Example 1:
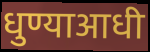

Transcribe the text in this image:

धुण्याआधी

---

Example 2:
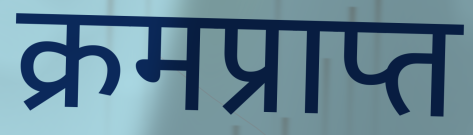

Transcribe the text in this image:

क्रमप्राप्त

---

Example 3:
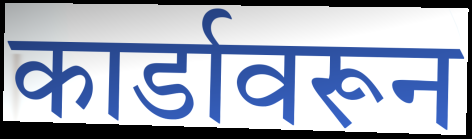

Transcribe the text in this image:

कार्डावरून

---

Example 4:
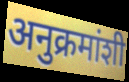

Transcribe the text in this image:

अनुक्रमांशी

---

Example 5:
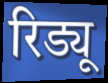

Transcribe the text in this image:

रिड्यू